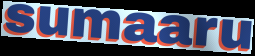
sumaaru